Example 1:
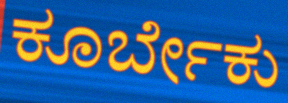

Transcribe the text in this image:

ಕೂರ್ಬೇಕು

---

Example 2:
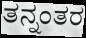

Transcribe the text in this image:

ತನ್ನಂತರ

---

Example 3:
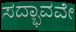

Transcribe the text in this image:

ಸದ್ಭಾವವೇ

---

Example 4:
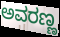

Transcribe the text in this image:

ಅವರಣ್ಣ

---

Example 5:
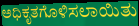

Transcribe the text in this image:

ಅಧಿಕೃತಗೊಳಿಸಲಾಯಿತು